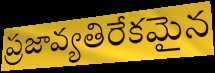
ప్రజావ్యతిరేకమైన